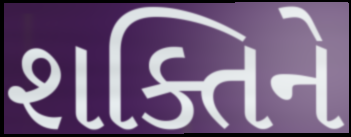
શક્તિને